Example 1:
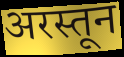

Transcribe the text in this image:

अरस्तून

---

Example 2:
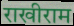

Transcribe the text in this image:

राखीराम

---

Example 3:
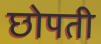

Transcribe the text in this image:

छोपती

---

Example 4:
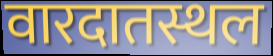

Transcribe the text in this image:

वारदातस्थल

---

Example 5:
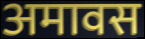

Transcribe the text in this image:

अमावस